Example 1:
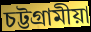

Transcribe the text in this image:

চট্টগ্ৰামীয়া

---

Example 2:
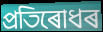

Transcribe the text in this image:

প্ৰতিৰোধৰ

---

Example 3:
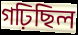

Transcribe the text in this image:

গঢ়িছিল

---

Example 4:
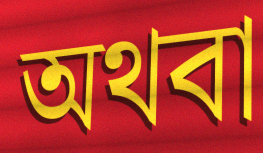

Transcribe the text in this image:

অথবা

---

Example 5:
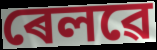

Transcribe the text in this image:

ৰেলৱে